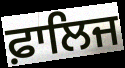
ਫ਼ਾਲਿਜ